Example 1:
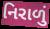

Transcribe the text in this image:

નિરાળું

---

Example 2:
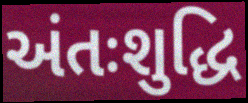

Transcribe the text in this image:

અંતઃશુદ્ધિ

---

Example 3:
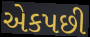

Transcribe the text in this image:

એકપછી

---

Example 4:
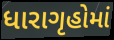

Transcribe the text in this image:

ધારાગૃહોમાં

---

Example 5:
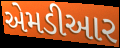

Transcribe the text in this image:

એમડીઆર